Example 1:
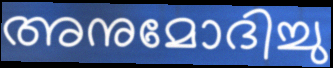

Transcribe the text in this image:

അനുമോദിച്ചു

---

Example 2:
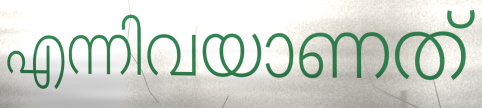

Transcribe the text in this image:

എന്നിവയാണത്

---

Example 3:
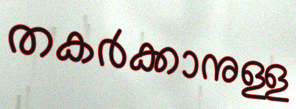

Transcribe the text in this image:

തകർക്കാനുള്ള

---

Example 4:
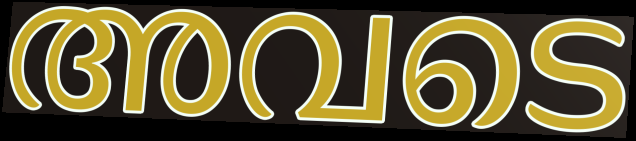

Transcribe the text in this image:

അവടെ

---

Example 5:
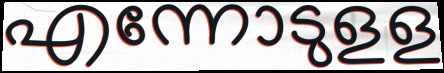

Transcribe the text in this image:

എന്നോടുളള